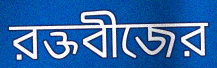
রক্তবীজের